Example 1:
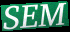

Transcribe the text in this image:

SEM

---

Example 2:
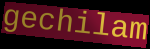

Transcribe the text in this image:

gechilam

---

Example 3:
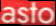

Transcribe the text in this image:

asto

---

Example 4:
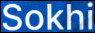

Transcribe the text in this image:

Sokhi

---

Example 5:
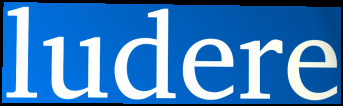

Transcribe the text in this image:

ludere